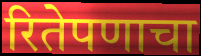
रितेपणाचा